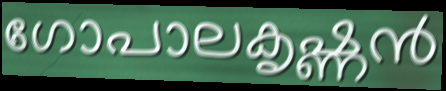
ഗോപാലകൃഷ്ണൻ